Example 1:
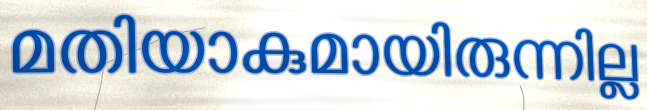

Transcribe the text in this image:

മതിയാകുമായിരുന്നില്ല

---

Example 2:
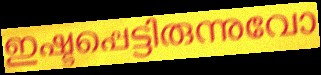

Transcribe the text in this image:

ഇഷ്ടപ്പെട്ടിരുന്നുവോ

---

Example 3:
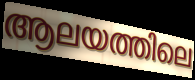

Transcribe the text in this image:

ആലയത്തിലെ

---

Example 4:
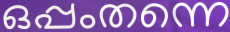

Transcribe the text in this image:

ഒപ്പംതന്നെ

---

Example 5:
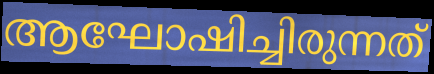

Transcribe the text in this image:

ആഘോഷിച്ചിരുന്നത്